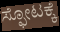
ಸ್ಫೋಟಕ್ಕೆ